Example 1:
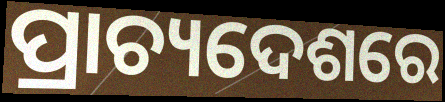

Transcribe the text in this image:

ପ୍ରାଚ୍ୟଦେଶରେ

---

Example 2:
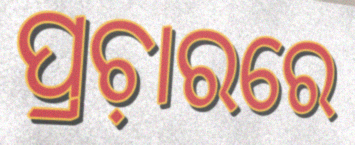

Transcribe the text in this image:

ପ୍ରଚ଼ାରରେ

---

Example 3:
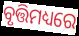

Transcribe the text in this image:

ବୃତ୍ତିମଧ୍ୟରେ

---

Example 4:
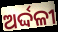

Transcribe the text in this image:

ଅର୍ଦ୍ଦଳୀ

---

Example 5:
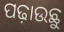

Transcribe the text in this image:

ପଢ଼ାଉଛୁ